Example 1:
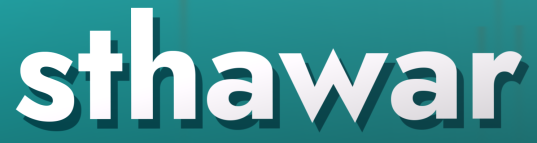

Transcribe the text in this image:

sthawar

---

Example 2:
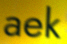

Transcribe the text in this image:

aek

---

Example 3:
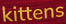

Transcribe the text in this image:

kittens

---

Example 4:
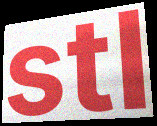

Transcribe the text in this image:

stl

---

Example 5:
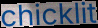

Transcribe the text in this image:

chicklit